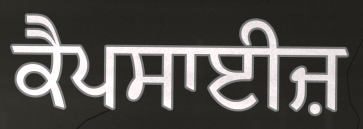
ਕੈਪਸਾਈਜ਼